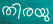
തിരയു